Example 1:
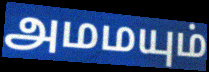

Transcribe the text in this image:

அமமயும்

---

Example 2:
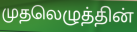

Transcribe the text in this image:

முதலெழுத்தின்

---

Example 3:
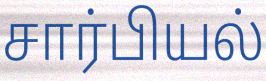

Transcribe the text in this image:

சார்பியல்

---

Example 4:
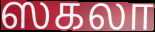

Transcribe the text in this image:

ஸகலா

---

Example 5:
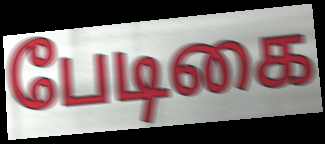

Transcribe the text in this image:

பேடிகை